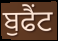
ਬੁਫੈਂਟ